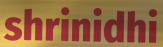
shrinidhi